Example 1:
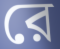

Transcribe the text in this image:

রে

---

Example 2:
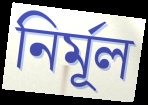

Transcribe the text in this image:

নির্মূল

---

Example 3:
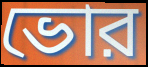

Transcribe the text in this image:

ভোর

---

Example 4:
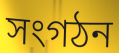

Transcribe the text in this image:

সংগঠন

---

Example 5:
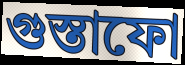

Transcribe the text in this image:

গুস্তাফো